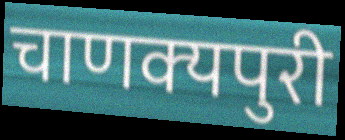
चाणक्यपुरी